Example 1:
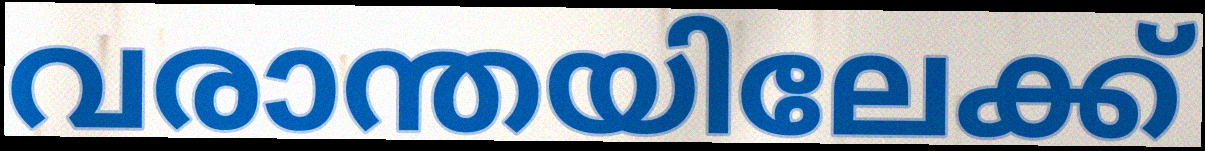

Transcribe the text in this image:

വരാന്തയിലേക്ക്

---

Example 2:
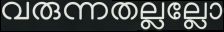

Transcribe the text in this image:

വരുന്നതല്ലല്ലോ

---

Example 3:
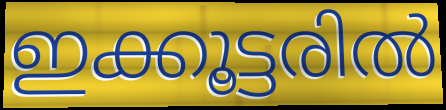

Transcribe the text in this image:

ഇക്കൂട്ടരിൽ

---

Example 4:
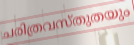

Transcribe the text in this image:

ചരിത്രവസ്തുതയും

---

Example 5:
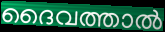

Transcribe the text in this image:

ദൈവത്താൽ